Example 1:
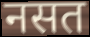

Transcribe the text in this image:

नसत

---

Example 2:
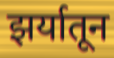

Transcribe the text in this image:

झर्यातून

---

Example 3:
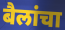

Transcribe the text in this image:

बैलांचा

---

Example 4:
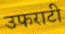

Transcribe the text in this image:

उफराटी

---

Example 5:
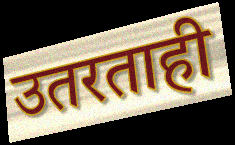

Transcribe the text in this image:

उतरताही